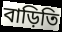
বাড়িতি